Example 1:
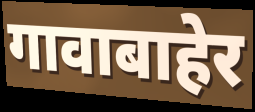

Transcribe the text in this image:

गावाबाहेर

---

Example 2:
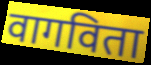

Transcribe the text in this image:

वागविता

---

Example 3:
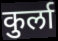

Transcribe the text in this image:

कुर्ला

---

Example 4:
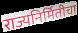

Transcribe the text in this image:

राज्यनिर्मितीचा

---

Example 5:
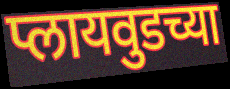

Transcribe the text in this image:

प्लायवुडच्या